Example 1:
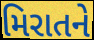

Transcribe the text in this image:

મિરાતને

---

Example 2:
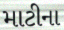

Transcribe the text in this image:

માટીના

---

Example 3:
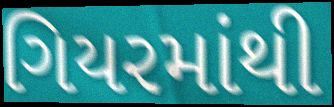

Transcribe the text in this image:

ગિયરમાંથી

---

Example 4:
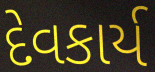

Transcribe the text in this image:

દેવકાર્ય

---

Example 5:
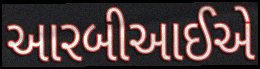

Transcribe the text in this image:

આરબીઆઈએ